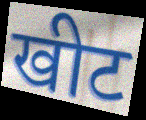
खीट